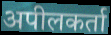
अपीलकर्ता